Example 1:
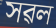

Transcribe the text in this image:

সৱল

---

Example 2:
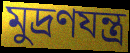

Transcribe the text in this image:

মুদ্ৰণযন্ত্ৰ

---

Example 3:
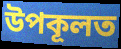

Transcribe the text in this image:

উপকূলত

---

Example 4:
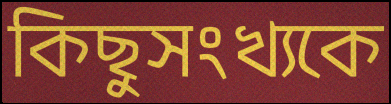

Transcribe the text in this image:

কিছুসংখ্যকে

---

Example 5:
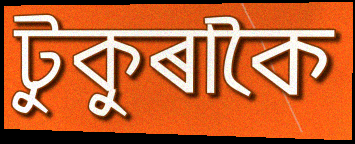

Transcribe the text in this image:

টুকুৰাকৈ